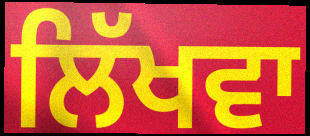
ਲਿੱਖਵਾ